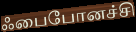
ஃபைபோனச்சி